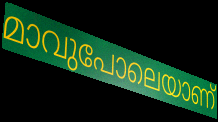
മാവുപോലെയാണ്